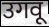
उगवू